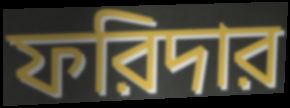
ফরিদার